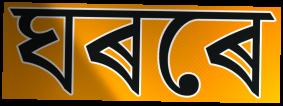
ঘৰৰে